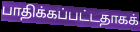
பாதிக்கப்பட்டதாகக்